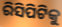
ରିସିପିଟିକୁ